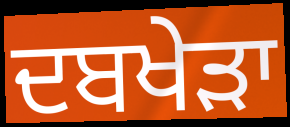
ਦਬਖੇੜਾ